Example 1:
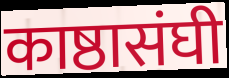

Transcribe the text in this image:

काष्ठासंघी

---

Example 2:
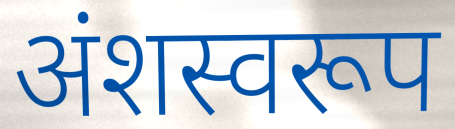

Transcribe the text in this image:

अंशस्वरूप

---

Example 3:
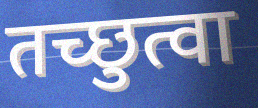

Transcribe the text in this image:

तच्छुत्वा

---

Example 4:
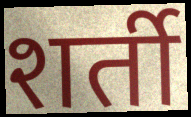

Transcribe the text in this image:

शर्ती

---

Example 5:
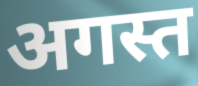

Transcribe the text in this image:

अगस्त